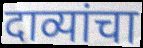
दाव्यांचा